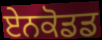
ਏਨਕੋਡਡ